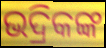
ଭଦ୍ରିକଙ୍କ